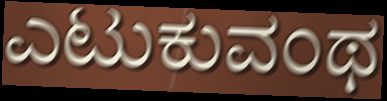
ಎಟುಕುವಂಥ